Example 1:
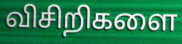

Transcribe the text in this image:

விசிறிகளை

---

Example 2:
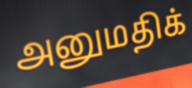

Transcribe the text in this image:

அனுமதிக்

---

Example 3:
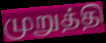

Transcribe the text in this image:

முறுத்தி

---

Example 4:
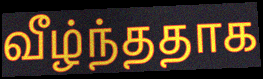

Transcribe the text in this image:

வீழ்ந்ததாக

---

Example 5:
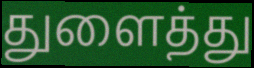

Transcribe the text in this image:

துளைத்து